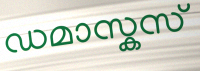
ഡമാസ്കസ്